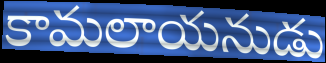
కామలాయనుడు